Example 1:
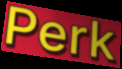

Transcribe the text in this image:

Perk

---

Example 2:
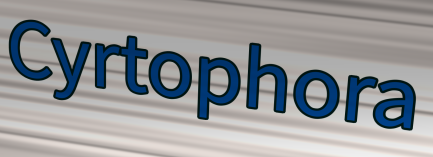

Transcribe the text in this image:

Cyrtophora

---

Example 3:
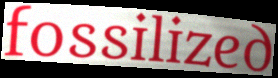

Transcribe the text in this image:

fossilized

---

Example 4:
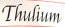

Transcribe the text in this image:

Thulium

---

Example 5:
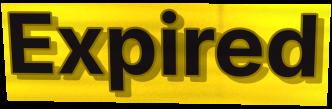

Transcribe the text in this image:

Expired